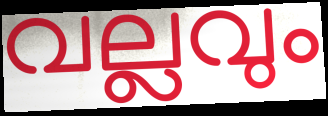
വല്ലവും